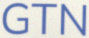
GTN